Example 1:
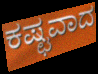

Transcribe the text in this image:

ಕಷ್ಟವಾದ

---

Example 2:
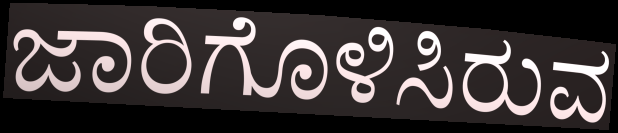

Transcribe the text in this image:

ಜಾರಿಗೊಳಿಸಿರುವ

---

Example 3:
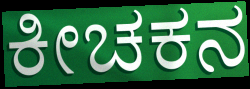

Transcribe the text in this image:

ಕೀಚಕನ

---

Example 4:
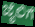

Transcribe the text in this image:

ಜೈಲಿಗೆ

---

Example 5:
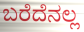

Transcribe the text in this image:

ಬರೆದೆನಲ್ಲ